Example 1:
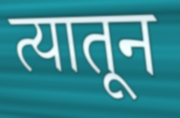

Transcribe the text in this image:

त्यातून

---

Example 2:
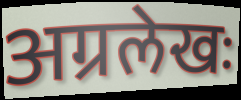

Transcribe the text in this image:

अग्रलेखः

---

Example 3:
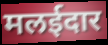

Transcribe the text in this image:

मलईदार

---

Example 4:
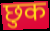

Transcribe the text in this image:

छुक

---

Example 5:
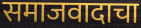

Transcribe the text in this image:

समाजवादाचा